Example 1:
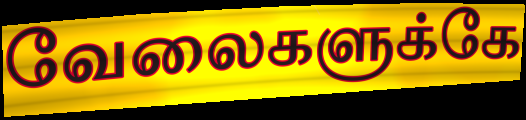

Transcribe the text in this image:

வேலைகளுக்கே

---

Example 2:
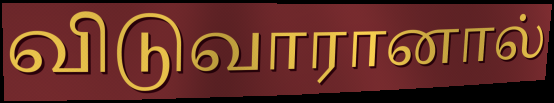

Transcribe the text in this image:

விடுவாரானால்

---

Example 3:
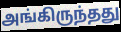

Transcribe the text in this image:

அங்கிருந்தது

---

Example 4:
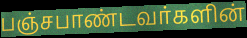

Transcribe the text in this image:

பஞ்சபாண்டவர்களின்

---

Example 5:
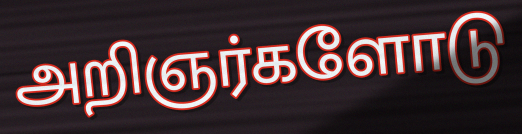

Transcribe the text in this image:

அறிஞர்களோடு